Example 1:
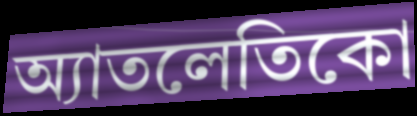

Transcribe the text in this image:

অ্যাতলেতিকো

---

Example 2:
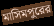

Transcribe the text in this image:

মাসিমপুরের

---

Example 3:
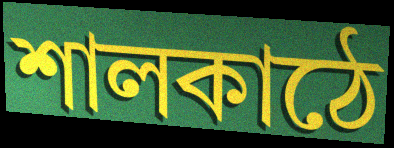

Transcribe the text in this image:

শালকাঠে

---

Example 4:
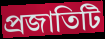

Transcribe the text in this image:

প্রজাতিটি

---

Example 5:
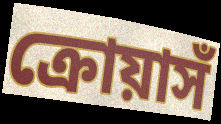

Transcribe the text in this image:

ক্রোয়াসঁ